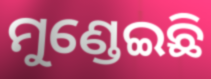
ମୁଣ୍ଡେଇଛି